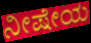
ನೀಷೇಯ